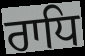
ਰਾਧਿ